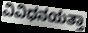
ವಿವಿಧನಯತ್ತಾ